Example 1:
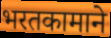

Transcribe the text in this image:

भरतकामाने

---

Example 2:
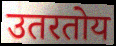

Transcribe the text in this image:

उतरतोय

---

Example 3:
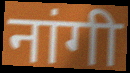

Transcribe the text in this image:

नांगी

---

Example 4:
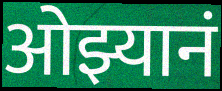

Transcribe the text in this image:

ओझ्यानं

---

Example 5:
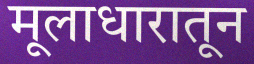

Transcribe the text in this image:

मूलाधारातून